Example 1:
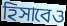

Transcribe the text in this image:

হিসাবেও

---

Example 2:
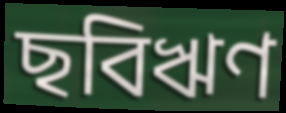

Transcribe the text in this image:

ছবিঋণ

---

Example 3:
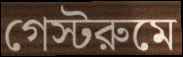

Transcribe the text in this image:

গেস্টরুমে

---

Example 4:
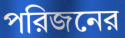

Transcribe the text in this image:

পরিজনের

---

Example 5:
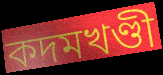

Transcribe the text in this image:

কদমখণ্ডী